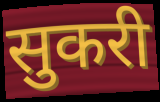
सुकरी